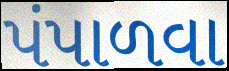
પંપાળવા